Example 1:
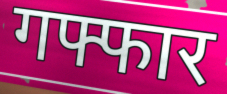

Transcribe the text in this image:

गफ्फार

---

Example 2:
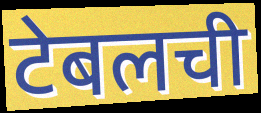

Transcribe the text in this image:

टेबलची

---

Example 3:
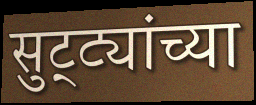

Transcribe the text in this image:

सुट्ट्यांच्या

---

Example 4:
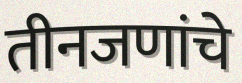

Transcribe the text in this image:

तीनजणांचे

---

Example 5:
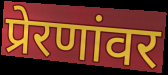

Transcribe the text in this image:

प्रेरणांवर